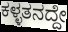
ಕಳ್ಳತನದ್ದೇ